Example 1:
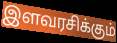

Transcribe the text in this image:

இளவரசிக்கும்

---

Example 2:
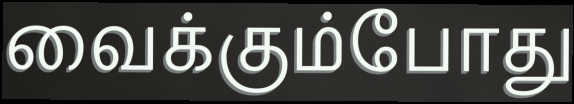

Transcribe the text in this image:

வைக்கும்போது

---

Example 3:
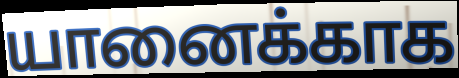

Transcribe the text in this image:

யானைக்காக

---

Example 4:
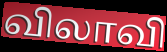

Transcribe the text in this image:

விலாவி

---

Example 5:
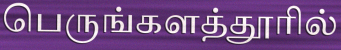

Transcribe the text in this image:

பெருங்களத்தூரில்